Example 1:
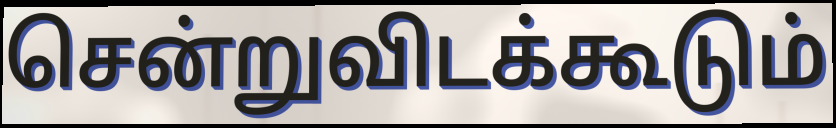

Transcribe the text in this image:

சென்றுவிடக்கூடும்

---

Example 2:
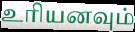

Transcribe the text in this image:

உரியனவும்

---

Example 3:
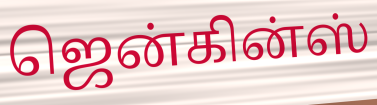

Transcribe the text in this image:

ஜென்கின்ஸ்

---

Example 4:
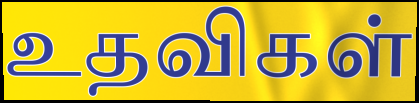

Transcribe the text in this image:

உதவிகள்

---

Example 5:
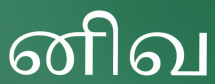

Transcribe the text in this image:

னிவ